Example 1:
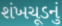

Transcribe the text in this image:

શંખચૂડનું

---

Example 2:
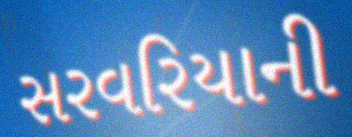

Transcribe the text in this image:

સરવરિયાની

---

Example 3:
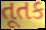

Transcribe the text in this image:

તૂતક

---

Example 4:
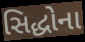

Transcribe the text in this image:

સિદ્ધોના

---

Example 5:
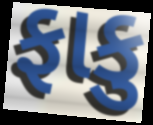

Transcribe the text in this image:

ફાકુ